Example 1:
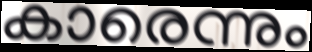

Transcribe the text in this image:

കാരെന്നും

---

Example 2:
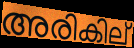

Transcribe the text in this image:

അരികില്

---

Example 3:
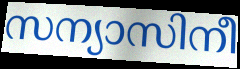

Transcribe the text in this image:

സന്യാസിനീ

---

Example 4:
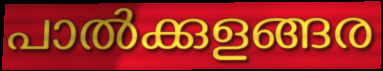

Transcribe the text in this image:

പാൽക്കുളങ്ങര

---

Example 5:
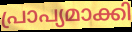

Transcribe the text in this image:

പ്രാപ്യമാക്കി